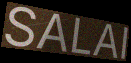
SALAI